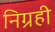
निग्रही